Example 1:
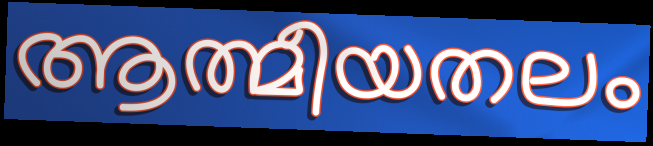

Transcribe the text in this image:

ആത്മീയതലം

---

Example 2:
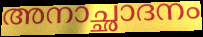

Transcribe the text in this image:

അനാച്ഛാദനം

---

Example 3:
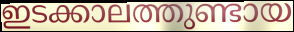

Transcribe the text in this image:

ഇടക്കാലത്തുണ്ടായ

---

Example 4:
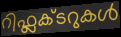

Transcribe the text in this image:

റിഫ്ലക്ടറുകൾ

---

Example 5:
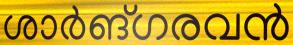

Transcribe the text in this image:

ശാർങ്ഗരവൻ